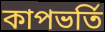
কাপভর্তি